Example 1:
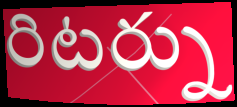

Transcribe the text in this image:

రిటర్ను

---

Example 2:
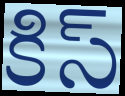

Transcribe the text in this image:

కిస్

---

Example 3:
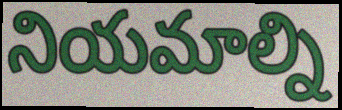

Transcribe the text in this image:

నియమాల్ని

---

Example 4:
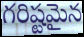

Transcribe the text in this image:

గరిష్టమైన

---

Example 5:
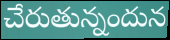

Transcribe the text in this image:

చేరుతున్నందున